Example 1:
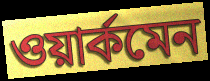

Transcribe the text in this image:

ওয়ার্কমেন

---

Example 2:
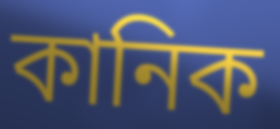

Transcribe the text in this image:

কানিক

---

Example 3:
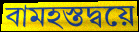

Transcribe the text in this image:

বামহস্তদ্বয়ে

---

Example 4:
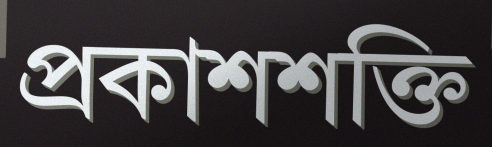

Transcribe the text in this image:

প্রকাশশক্তি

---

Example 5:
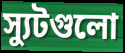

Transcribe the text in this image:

স্যুটগুলো